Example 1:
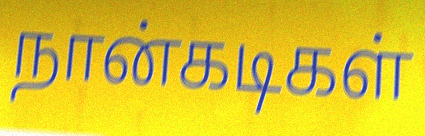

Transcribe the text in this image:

நான்கடிகள்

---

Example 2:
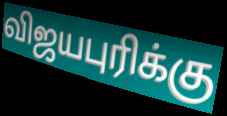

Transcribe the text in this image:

விஜயபுரிக்கு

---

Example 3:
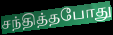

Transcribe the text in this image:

சந்தித்தபோது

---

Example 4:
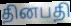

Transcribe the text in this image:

தினபதி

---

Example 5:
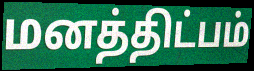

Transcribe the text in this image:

மனத்திட்பம்